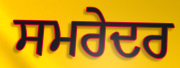
ਸਮਰੇਦਰ